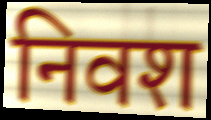
निवश